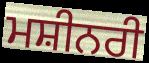
ਮਸ਼ੀਨਰੀ